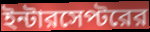
ইন্টারসেপ্টরের